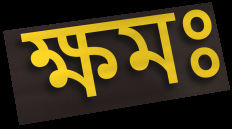
ক্ষমঃ